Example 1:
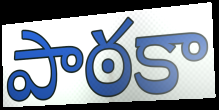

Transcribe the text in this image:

పాఠకా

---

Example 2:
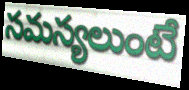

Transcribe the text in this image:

సమస్యలుంటే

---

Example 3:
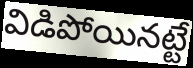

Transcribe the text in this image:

విడిపోయినట్టే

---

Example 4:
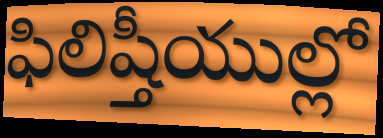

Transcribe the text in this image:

ఫిలిష్తీయుల్లో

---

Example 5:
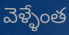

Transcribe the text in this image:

వెళ్ళేంత